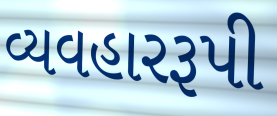
વ્યવહારરૂપી